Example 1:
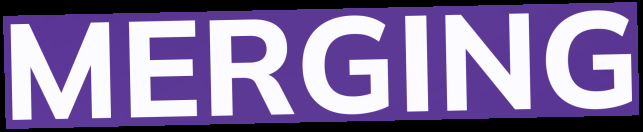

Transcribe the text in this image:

MERGING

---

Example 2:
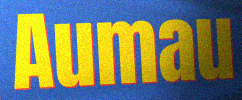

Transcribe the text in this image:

Aumau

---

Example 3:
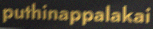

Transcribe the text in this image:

puthinappalakai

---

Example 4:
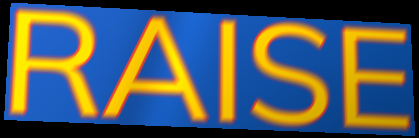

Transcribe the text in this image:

RAISE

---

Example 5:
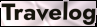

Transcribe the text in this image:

Travelog